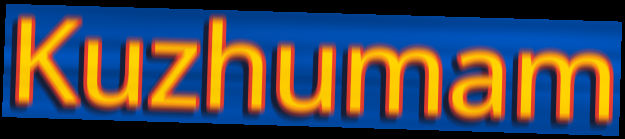
Kuzhumam